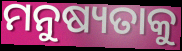
ମନୁଷ୍ୟତାକୁ